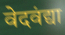
वेदवंद्या